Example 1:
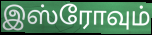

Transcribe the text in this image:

இஸ்ரோவும்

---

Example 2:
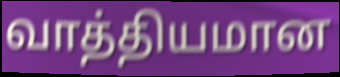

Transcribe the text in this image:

வாத்தியமான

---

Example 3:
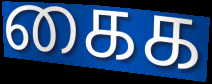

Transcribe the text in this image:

கைக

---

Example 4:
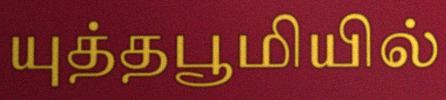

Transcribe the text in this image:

யுத்தபூமியில்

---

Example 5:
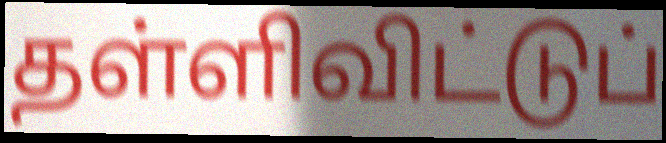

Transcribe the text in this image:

தள்ளிவிட்டுப்